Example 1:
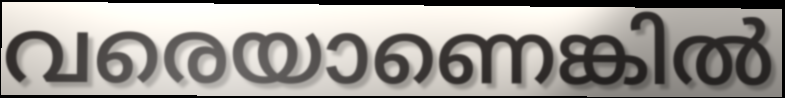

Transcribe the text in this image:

വരെയാണെങ്കിൽ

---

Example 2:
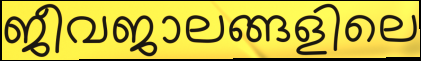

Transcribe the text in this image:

ജീവജാലങ്ങളിലെ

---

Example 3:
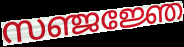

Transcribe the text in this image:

സഞ്ജജ്ഞേ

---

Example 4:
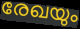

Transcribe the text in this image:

രേഖയും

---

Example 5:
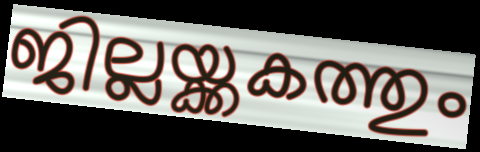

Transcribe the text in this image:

ജില്ലയ്ക്കകത്തും